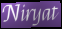
Niryat